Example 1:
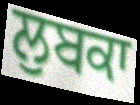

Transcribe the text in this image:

ਲੁਬਕਾ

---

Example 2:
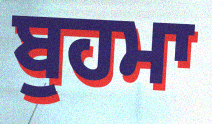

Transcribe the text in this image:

ਬੁਹਮਾ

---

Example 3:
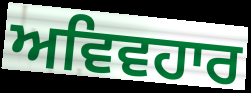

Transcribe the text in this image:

ਅਵਿਵਹਾਰ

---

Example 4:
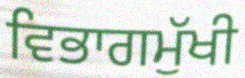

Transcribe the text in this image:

ਵਿਭਾਗਮੁੱਖੀ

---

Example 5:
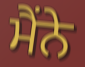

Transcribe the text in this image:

ਮੈਂਨੇ